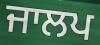
ਜਾਲਪ